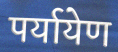
पर्यायेण